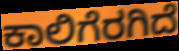
ಕಾಲಿಗೆರಗಿದೆ